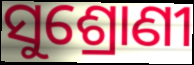
ସୁଶ୍ରୋଣୀ